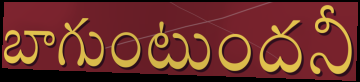
బాగుంటుందనీ